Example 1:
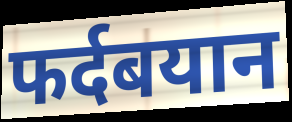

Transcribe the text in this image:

फर्दबयान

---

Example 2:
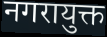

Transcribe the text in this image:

नगरायुक्त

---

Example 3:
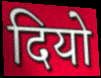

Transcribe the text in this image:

दियो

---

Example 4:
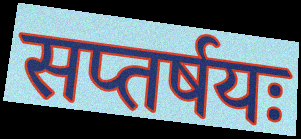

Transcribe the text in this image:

सप्तर्षयः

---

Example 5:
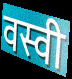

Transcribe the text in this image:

वस्वी